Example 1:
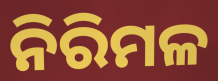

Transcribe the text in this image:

ନିରିମଳ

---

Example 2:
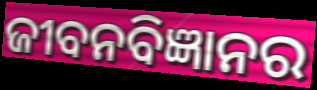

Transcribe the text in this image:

ଜୀବନବିଜ୍ଞାନର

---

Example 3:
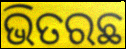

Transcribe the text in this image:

ଭିତରଛ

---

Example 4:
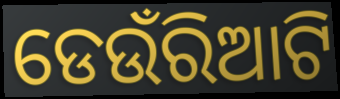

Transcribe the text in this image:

ଡେଉଁରିଆଟି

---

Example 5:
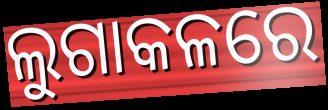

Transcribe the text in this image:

ଲୁଗାକଳରେ